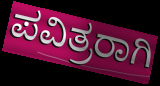
ಪವಿತ್ರರಾಗಿ